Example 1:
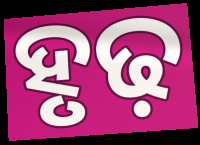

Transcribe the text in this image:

ହୃଢ଼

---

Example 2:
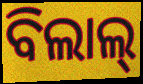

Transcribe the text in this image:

ବିଲାଲ୍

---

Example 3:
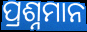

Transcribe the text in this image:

ପ୍ରଶ୍ନମାନ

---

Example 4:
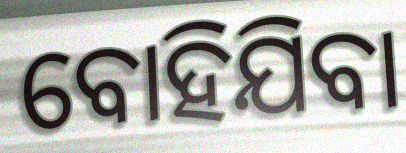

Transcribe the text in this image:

ବୋହିଯିବା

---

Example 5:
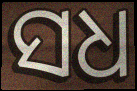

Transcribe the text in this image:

ସଧ